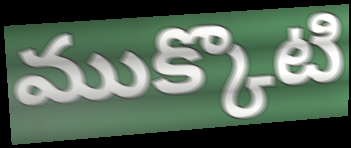
ముక్కొటి